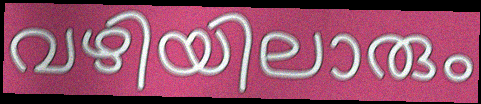
വഴിയിലാരും